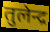
तुलेन्द्र